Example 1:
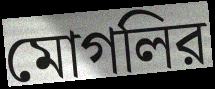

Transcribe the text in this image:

মোগলির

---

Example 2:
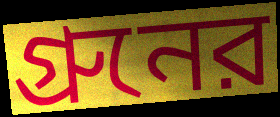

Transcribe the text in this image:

গ্রুনের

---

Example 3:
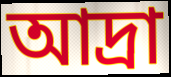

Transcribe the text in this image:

আদ্রা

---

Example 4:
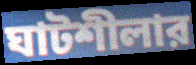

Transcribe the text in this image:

ঘাটশীলার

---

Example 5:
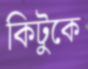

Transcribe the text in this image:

কিটুকে